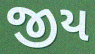
જીય